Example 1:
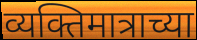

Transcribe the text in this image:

व्यक्तिमात्राच्या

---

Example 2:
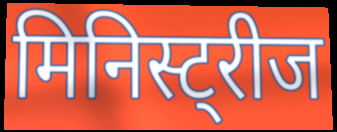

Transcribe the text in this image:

मिनिस्ट्रीज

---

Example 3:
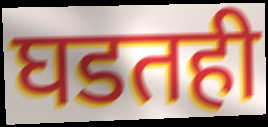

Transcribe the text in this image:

घडतही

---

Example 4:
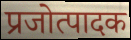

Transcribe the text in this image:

प्रजोत्पादक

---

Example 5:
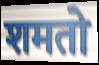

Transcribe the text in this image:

शमतो